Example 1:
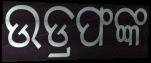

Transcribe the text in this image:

ଉଡ୍ରଫଙ୍କ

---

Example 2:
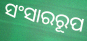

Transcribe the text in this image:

ସଂସାରରୂପ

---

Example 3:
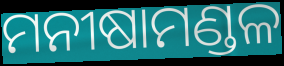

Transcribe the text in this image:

ମନୀଷାମଣ୍ଡଳ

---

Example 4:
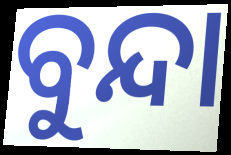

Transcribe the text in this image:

ବୁନ୍ଦା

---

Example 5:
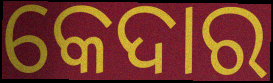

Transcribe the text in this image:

କେଦାର